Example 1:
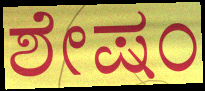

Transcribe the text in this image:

ಶೇಷಂ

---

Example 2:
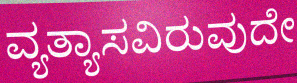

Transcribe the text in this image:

ವ್ಯತ್ಯಾಸವಿರುವುದೇ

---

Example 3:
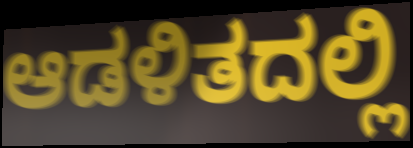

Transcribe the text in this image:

ಆಡಳಿತದಲ್ಲಿ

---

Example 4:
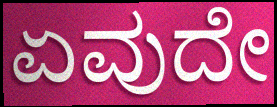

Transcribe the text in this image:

ಏವುದೇ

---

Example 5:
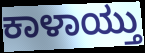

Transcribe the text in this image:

ಕಾಳಾಯ್ತು